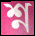
শ্ন